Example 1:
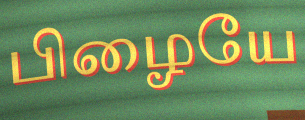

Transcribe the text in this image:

பிழையே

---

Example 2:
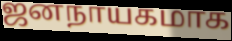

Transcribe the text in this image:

ஜனநாயகமாக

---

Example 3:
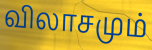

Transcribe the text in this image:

விலாசமும்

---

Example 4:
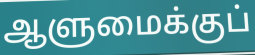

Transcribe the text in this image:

ஆளுமைக்குப்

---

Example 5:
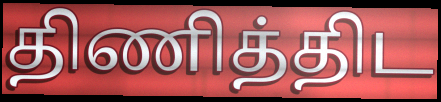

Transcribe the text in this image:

திணித்திட